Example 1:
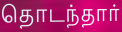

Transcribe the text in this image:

தொடந்தார்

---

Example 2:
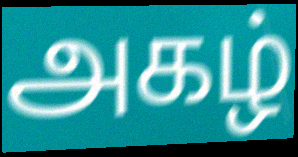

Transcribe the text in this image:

அகழ்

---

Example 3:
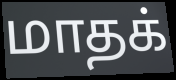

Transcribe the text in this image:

மாதக்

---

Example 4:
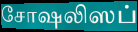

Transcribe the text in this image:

சோஷலிஸப்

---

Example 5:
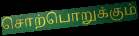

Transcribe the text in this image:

சொற்பொறுக்கும்